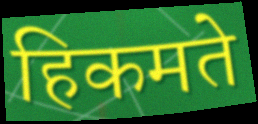
हिकमते